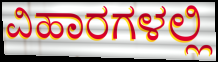
ವಿಹಾರಗಳಲ್ಲಿ